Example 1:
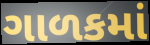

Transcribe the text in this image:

ગાળકમાં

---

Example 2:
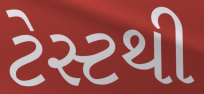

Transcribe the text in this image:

ટેસ્ટથી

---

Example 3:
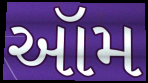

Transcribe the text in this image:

ઑમ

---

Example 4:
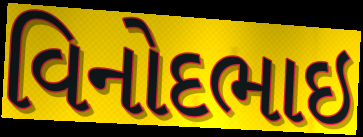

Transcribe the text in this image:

વિનોદભાઇ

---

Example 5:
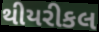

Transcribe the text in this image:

થીયરીકલ